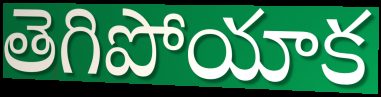
తెగిపోయాక